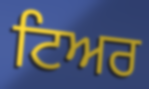
ਟਿਅਰ